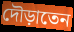
দৌড়াতেন